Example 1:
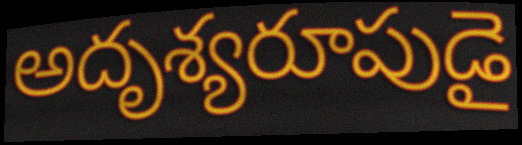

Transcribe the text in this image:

అదృశ్యరూపుడై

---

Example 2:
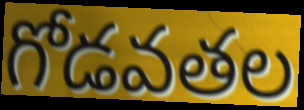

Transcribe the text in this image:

గోడవతల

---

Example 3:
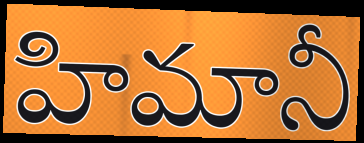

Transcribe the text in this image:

హిమానీ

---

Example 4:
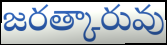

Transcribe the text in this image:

జరత్కారువు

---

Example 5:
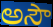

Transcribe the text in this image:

అసౌ